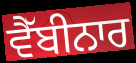
ਵੈੱਬੀਨਾਰ